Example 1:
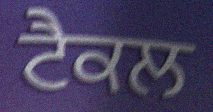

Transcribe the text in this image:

ਟੈਕਲ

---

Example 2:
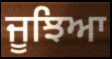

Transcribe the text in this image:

ਜੂਝਿਆ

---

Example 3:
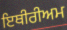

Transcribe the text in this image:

ਇਥੀਰੀਅਮ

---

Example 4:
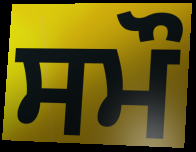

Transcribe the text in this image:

ਸਮੌ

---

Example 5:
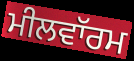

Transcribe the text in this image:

ਮੀਲਵਾੱਰਮ